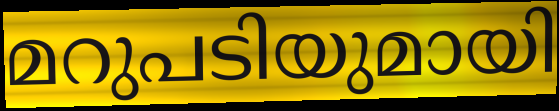
മറുപടിയുമായി